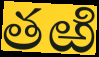
తఱి